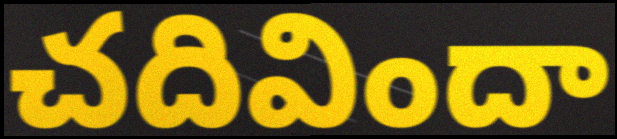
చదివిందా